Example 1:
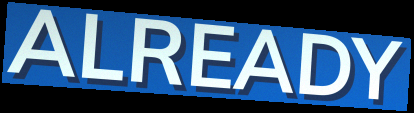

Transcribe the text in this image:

ALREADY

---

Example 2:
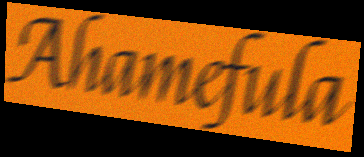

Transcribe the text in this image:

Ahamefula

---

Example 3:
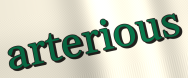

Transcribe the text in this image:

arterious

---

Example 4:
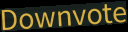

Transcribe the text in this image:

Downvote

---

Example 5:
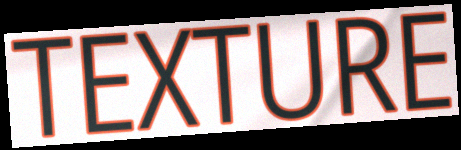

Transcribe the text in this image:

TEXTURE